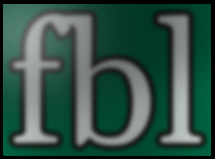
fbl